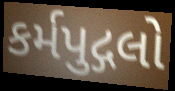
કર્મપુદ્ગલો